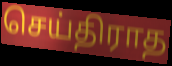
செய்திராத